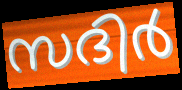
സദിർ